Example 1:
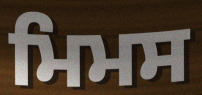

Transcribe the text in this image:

ਮਿਮਸ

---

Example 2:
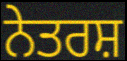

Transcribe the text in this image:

ਨੇਤਰਸ਼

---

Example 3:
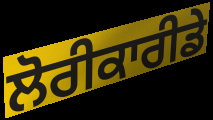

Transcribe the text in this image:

ਲੋਰੀਕਾਰੀਡੇ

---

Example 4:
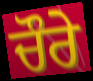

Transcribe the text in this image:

ਚੌਰੇ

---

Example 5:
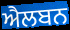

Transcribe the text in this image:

ਐਲਬਨ